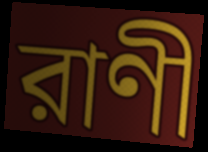
রাণী